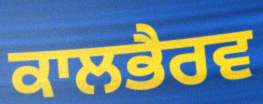
ਕਾਲਭੈਰਵ